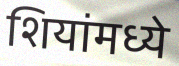
शियांमध्ये